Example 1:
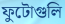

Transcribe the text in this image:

ফুটোগুলি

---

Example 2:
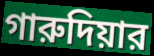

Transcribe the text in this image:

গারুদিয়ার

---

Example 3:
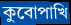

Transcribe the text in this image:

কুবোপাখি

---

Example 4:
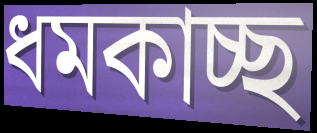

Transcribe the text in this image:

ধমকাচ্ছ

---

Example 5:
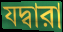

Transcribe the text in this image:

যদ্বারা